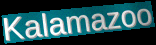
Kalamazoo